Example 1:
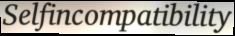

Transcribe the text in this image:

Selfincompatibility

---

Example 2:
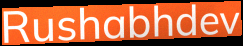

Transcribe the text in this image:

Rushabhdev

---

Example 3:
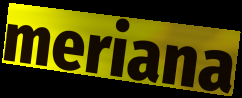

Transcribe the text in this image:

meriana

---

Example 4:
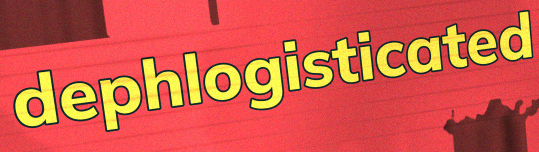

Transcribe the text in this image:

dephlogisticated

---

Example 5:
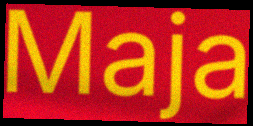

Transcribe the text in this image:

Maja